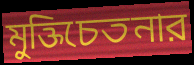
মুক্তিচেতনার